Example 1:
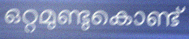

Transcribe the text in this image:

ഒറ്റമുണ്ടുകൊണ്ട്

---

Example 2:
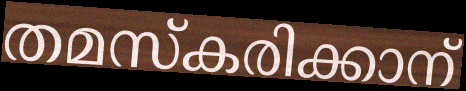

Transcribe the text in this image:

തമസ്കരിക്കാന്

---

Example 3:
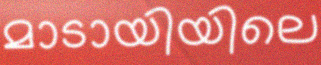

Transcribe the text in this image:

മാടായിയിലെ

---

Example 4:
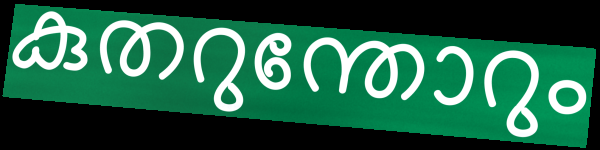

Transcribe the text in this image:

കുതറുന്തോറും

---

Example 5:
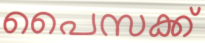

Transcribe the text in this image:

പൈസക്ക്